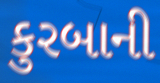
કુરબાની